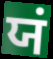
ਯਂ